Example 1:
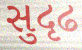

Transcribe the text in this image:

સુદૃઢ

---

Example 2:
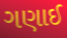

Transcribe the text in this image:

ગણાઈ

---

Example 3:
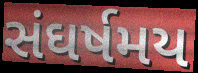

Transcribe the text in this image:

સંઘર્ષમય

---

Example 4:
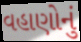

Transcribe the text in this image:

વહાણોનું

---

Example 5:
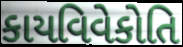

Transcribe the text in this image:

કાયવિવેકોતિ